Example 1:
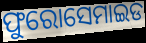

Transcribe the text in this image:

ଫୁରୋସେମାଇଡ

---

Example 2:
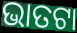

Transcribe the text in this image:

ଭାତଟା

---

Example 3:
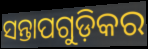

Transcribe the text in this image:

ସନ୍ତାପଗୁଡ଼ିକର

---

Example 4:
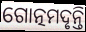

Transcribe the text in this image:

ଗୋତ୍ନମଦୃନ୍ତି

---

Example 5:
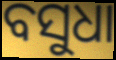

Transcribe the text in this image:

ବସୁଧା